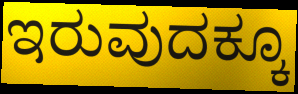
ಇರುವುದಕ್ಕೂ